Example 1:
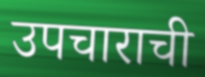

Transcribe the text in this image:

उपचाराची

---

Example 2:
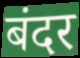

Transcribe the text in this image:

बंदर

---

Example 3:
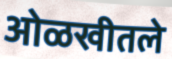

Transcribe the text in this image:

ओळखीतले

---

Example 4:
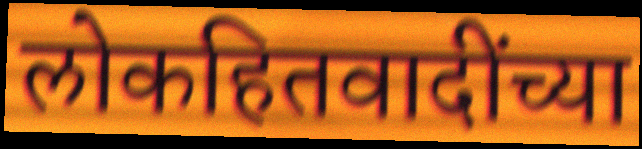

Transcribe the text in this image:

लोकहितवादींच्या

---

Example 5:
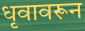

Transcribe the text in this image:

धृवावरून